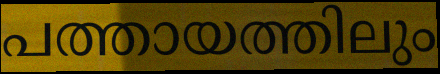
പത്തായത്തിലും